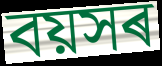
বয়সৰ